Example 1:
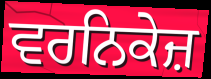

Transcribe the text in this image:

ਵਰਨਿਕੇਜ਼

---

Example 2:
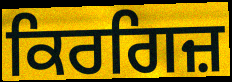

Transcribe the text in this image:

ਕਿਰਗਿਜ਼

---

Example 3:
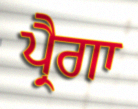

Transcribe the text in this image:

ਪ੍ਰੈਗਾ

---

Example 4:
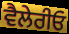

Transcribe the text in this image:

ਵੈਲੇਰੀਓ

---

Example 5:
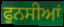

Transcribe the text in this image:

ਫੁਨਸੀਆਂ